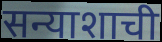
सन्याशाची